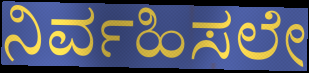
ನಿರ್ವಹಿಸಲೇ